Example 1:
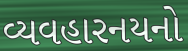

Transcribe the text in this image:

વ્યવહારનયનો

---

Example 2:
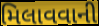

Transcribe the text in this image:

મિલાવવાની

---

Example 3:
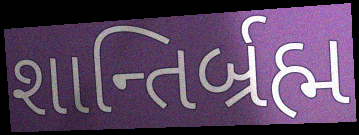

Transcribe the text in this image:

શાન્તિર્બ્રહ્મ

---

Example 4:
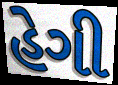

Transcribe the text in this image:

હેગી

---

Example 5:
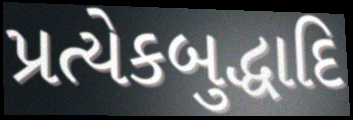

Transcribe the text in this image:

પ્રત્યેકબુદ્ધાદિ